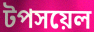
টপসয়েল